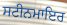
ਸਟੀਨਮਾਇਰ